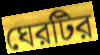
ঘেরটির